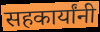
सहकार्यांनी